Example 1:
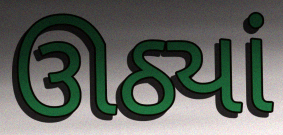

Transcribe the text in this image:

ઊઠ્યાં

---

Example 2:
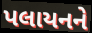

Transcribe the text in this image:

પલાયનને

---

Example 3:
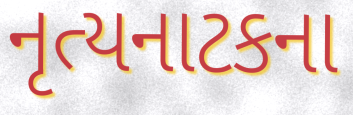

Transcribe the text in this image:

નૃત્યનાટકના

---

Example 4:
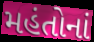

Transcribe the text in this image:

મહંતોનાં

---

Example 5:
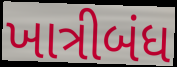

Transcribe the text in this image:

ખાત્રીબંધ